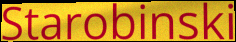
Starobinski